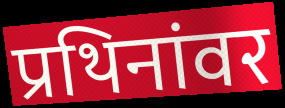
प्रथिनांवर